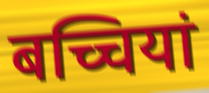
बच्चियां